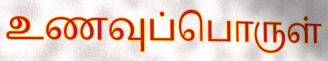
உணவுப்பொருள்